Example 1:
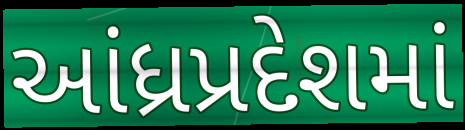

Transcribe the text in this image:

આંધ્રપ્રદેશમાં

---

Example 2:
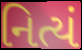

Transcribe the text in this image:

નિત્યં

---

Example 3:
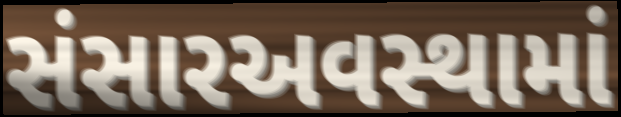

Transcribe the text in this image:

સંસારઅવસ્થામાં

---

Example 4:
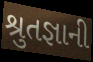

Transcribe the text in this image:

શ્રુતજ્ઞાની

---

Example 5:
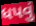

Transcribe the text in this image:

ધપવું